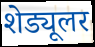
शेड्यूलर